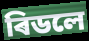
ৰিডলে